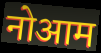
नोआम